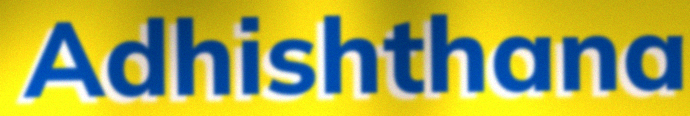
Adhishthana